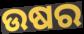
ଉଷର